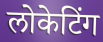
लोकेटिंग